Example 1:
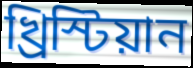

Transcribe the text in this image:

খ্রিস্টিয়ান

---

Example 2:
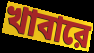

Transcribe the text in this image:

খাবারে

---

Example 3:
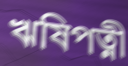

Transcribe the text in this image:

ঋষিপত্নী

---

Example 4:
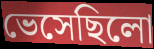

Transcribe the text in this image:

ভেসেছিলো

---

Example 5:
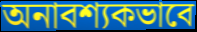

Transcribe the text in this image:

অনাবশ্যকভাবে